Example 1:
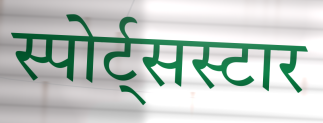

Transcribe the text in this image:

स्पोर्ट्सस्टार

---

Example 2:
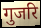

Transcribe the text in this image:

गुजरि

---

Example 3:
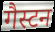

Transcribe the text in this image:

गैस्टन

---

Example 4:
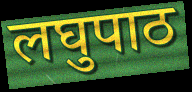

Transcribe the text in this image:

लघुपाठ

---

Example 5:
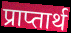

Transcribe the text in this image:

प्राप्तार्थ